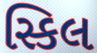
સ્કિલ